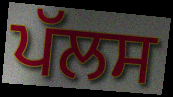
ਪੱਲਸ